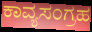
ಕಾವ್ಯಸಂಗ್ರಹ